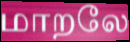
மாறலே